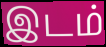
இடம்